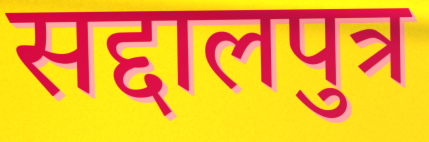
सद्दालपुत्र